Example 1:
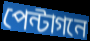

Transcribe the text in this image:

পেন্টাগনে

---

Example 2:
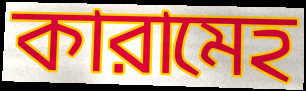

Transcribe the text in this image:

কারামেহ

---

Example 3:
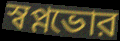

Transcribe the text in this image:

স্বপ্নভোর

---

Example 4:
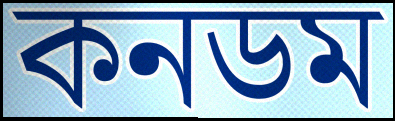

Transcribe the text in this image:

কনডম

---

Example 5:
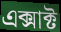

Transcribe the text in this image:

এক্সাক্ট